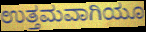
ಉತ್ತಮವಾಗಿಯೂ